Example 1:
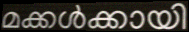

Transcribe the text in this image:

മക്കൾക്കായി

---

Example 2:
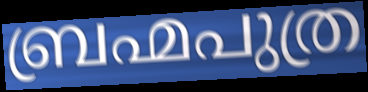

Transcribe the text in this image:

ബ്രഹ്മപുത്ര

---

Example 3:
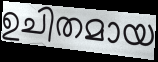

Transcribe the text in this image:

ഉചിതമായ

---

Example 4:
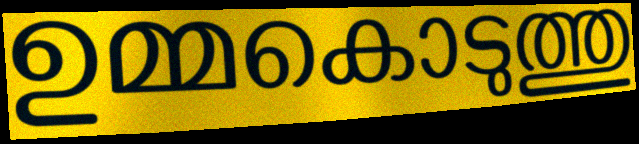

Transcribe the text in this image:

ഉമ്മകൊടുത്തു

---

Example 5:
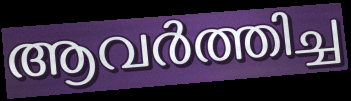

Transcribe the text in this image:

ആവർത്തിച്ച